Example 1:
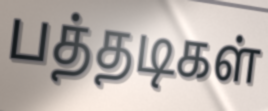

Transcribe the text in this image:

பத்தடிகள்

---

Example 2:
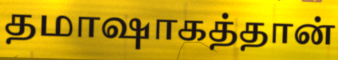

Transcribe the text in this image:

தமாஷாகத்தான்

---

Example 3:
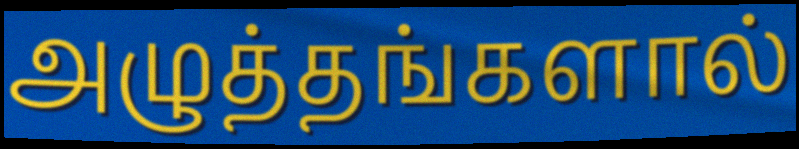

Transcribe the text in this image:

அழுத்தங்களால்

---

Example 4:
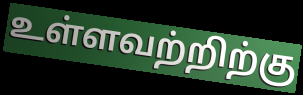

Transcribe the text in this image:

உள்ளவற்றிற்கு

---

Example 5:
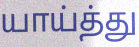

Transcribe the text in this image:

யாய்த்து